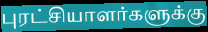
புரட்சியாளர்களுக்கு